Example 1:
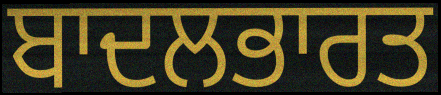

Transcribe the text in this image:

ਬਾਦਲਭਾਰਤ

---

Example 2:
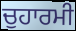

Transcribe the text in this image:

ਚੁਹਾਰਮੀ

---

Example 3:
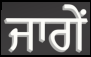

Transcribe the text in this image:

ਜਾਗੇਂ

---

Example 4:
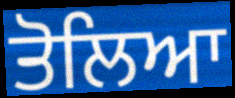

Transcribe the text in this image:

ਤੋਲਿਆ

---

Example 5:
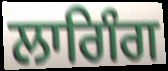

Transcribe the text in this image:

ਲਾਗਿੰਗ